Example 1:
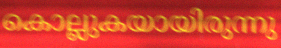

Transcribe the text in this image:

കൊല്ലുകയായിരുന്നു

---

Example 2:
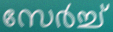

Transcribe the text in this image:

സേർച്ച്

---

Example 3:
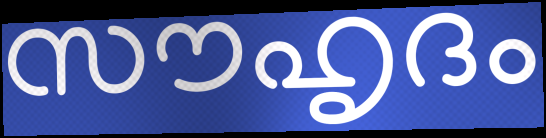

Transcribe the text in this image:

സൗഹൃദം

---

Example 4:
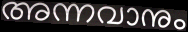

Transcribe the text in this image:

അന്നവാനും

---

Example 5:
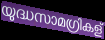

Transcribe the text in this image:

യുദ്ധസാമഗ്രികള്